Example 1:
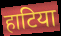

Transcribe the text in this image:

हाटिया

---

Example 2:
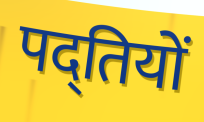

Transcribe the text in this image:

पद्तियों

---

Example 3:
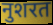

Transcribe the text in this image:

नुशरत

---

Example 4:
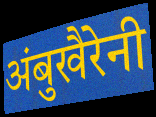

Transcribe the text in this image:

अंबुखैरेनी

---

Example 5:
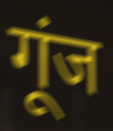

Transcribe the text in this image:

गूंज